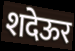
शदेऊर